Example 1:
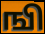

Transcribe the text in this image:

ஙி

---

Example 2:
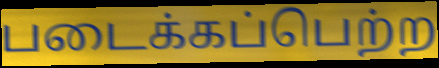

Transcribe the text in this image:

படைக்கப்பெற்ற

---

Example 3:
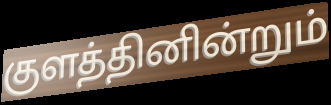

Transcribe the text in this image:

குளத்தினின்றும்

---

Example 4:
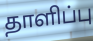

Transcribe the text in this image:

தாளிப்பு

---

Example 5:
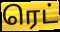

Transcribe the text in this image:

ரெட்